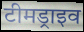
टीमड्राइव